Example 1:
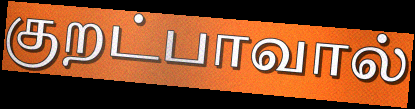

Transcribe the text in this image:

குறட்பாவால்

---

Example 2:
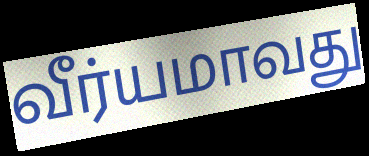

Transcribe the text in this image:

வீர்யமாவது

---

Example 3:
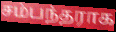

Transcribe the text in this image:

சம்பந்தராக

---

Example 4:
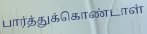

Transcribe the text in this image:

பார்த்துக்கொண்டாள்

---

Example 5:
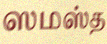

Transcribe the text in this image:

ஸமஸ்த